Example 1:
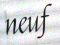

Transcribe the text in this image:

neuf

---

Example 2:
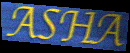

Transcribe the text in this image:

ASHA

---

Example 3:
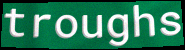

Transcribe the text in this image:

troughs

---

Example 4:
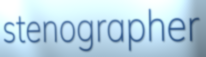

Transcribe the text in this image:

stenographer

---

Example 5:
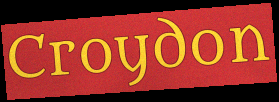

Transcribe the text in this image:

Croydon